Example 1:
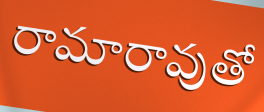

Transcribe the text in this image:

రామారావుతో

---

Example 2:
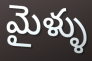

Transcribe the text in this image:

మైళ్ళు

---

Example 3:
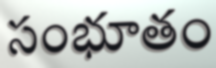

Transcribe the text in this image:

సంభూతం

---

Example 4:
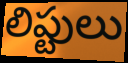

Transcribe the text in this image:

లిప్టులు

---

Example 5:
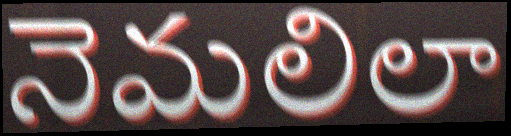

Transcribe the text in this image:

నెమలిలా